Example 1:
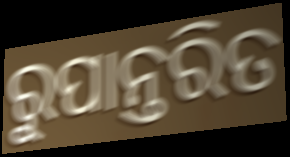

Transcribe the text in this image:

ରୁପାନ୍ତରିତ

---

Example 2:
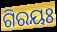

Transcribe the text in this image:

ଗିରୟଃ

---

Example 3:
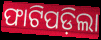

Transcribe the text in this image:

ଫାଟିପଡ଼ିଲା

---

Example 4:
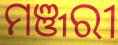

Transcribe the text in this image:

ମଞ୍ଜରୀ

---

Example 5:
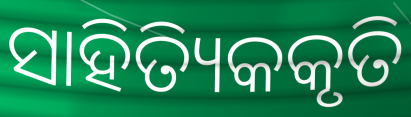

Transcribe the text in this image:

ସାହିତ୍ୟିକକୃତି